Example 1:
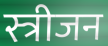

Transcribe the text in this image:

स्त्रीजन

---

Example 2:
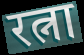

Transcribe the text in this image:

रत्ना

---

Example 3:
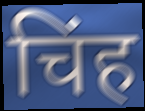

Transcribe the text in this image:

चिंह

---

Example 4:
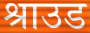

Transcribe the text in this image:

श्राउड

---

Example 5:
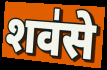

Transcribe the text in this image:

शव॑से